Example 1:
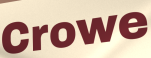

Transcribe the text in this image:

Crowe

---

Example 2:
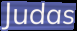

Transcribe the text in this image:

Judas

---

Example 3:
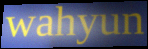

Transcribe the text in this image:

wahyun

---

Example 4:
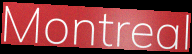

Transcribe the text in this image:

Montreal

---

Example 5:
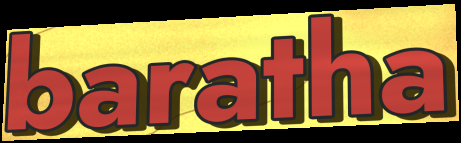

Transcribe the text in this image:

baratha